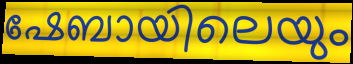
ഷേബായിലെയും